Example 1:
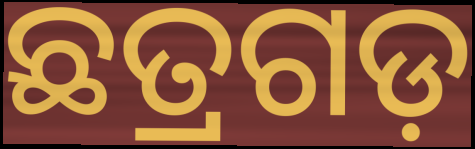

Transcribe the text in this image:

ଛତ୍ରଗଡ଼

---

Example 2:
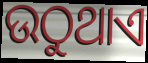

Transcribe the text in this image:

ଉଠୁଥାଏ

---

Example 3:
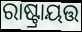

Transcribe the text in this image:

ରାଷ୍ଟ୍ରାୟତ୍ତ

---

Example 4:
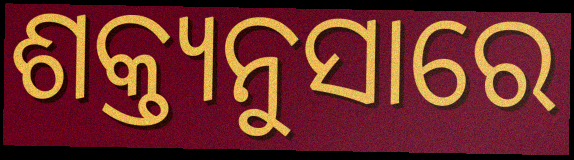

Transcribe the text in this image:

ଶକ୍ତ୍ୟନୁସାରେ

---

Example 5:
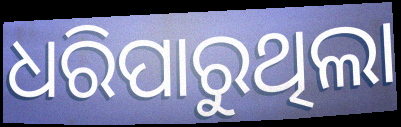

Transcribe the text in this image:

ଧରିପାରୁଥିଲା